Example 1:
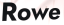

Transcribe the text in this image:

Rowe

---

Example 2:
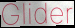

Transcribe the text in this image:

Glider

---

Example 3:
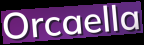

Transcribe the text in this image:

Orcaella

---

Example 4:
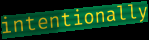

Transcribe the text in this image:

intentionally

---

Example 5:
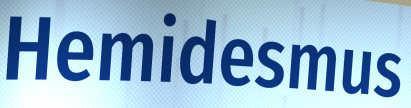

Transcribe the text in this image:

Hemidesmus